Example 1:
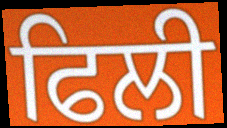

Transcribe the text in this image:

ਫਿਲੀ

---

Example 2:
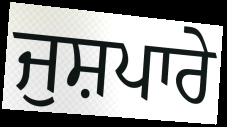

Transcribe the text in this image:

ਜੁਸ਼ਪਾਰੇ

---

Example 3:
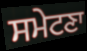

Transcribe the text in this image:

ਸਮੇਟਣਾ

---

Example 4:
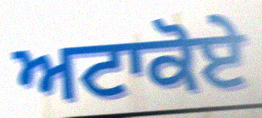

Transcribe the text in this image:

ਅਟਾਕੋਏ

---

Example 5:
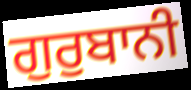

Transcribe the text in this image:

ਗੁਰੁਬਾਨੀ